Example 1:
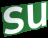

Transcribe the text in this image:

su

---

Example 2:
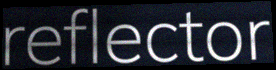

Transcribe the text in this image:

reflector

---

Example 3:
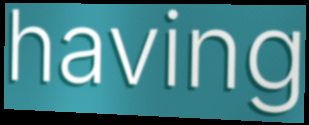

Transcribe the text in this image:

having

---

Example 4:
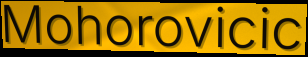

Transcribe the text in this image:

Mohorovicic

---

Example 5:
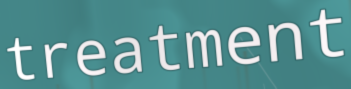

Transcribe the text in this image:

treatment